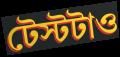
টেস্টটাও